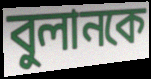
বুলানকে